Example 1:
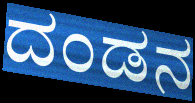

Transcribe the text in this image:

ದಂಡನ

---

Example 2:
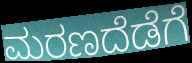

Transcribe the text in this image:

ಮರಣದೆಡೆಗೆ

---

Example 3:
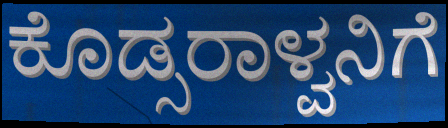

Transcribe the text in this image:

ಕೊಡ್ಸರಾಳ್ವನಿಗೆ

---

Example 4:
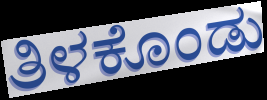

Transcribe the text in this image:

ತಿಳಕೊಂಡು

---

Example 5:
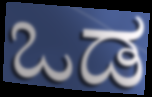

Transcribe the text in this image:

ಒಡ